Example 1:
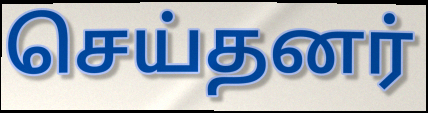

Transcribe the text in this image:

செய்தனர்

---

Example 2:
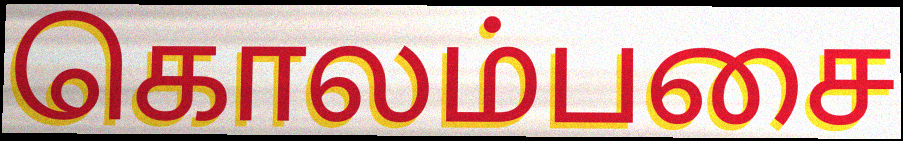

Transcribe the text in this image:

கொலம்பசை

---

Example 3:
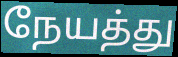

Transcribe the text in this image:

நேயத்து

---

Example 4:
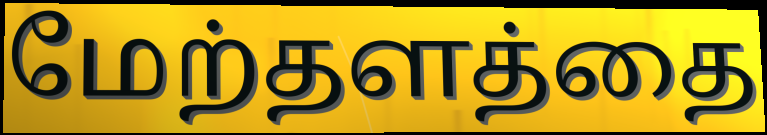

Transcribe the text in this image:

மேற்தளத்தை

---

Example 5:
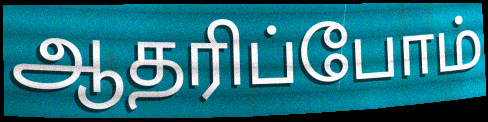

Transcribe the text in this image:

ஆதரிப்போம்